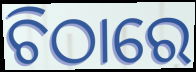
ଚିଠାରେ